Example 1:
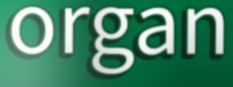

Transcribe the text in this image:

organ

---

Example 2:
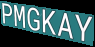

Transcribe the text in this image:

PMGKAY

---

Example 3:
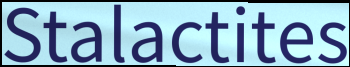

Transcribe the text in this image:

Stalactites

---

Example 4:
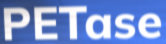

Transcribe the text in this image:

PETase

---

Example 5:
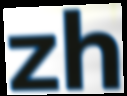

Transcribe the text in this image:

zh